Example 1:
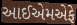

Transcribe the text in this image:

આઈએમએફે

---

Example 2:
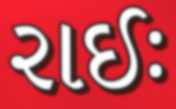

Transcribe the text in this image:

રાઈઃ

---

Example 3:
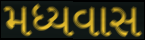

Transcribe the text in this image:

મધ્યવાસ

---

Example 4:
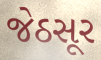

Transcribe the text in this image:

જેઠસૂર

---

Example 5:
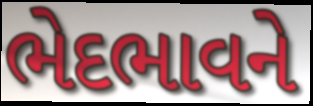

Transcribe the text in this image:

ભેદભાવને